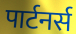
पार्टनर्स